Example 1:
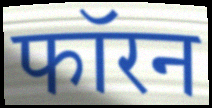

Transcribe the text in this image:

फॉरन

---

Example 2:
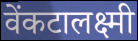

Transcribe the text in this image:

वेंकटालक्ष्मी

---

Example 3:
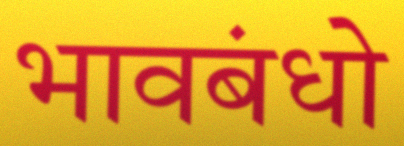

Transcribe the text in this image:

भावबंधो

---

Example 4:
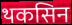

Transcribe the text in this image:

थकसिन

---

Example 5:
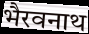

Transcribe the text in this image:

भैरवनाथ